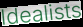
Idealists